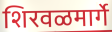
शिरवळमार्गे